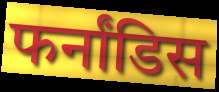
फर्नांडिस